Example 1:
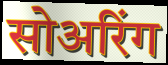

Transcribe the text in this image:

सोअरिंग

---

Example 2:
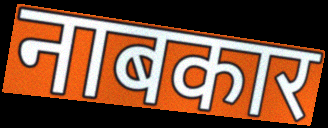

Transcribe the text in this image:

नाबकार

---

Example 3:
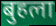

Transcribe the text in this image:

बुहला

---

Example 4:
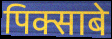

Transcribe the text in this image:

पिक्साबे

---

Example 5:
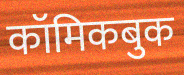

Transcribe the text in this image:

कॉमिकबुक